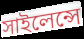
সাইলেন্সে